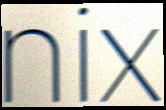
nix